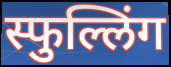
स्फुल्लिंग